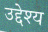
उद्देश्य